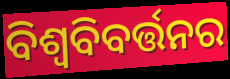
ବିଶ୍ଵବିବର୍ତ୍ତନର